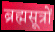
ब्रह्मसूत्रों